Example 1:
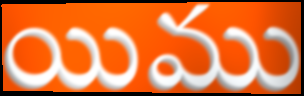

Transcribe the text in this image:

యిము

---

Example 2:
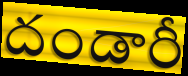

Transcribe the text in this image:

దండారీ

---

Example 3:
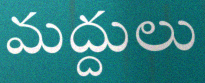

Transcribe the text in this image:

మద్దులు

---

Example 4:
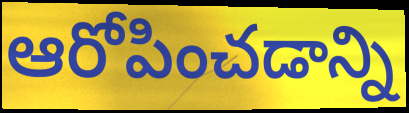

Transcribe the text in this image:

ఆరోపించడాన్ని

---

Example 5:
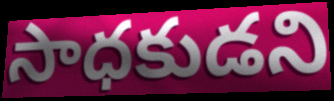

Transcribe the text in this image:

సాధకుడని